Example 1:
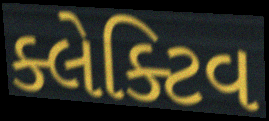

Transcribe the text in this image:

ક્લેક્ટિવ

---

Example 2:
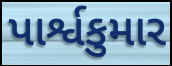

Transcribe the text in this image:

પાર્શ્વકુમાર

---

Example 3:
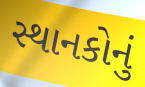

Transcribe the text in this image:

સ્થાનકોનું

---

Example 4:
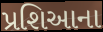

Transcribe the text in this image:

પ્રશિઆના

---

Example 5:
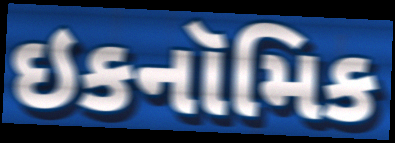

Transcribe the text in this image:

ઇકનૉમિક